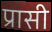
प्रासी